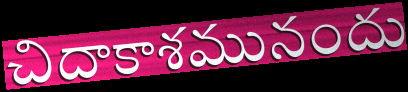
చిదాకాశమునందు